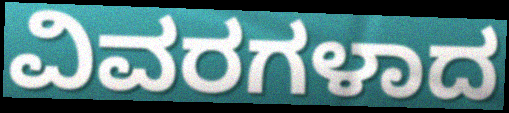
ವಿವರಗಳಾದ